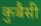
कुबैसी